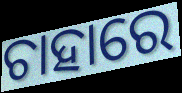
ଚାହାରେ